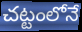
చట్టంలోనే